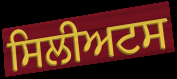
ਸਿਲੀਅਟਸ